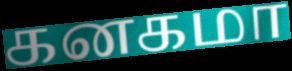
கனகமா